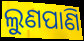
ଲୁଣପାଣି